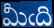
మీఁది